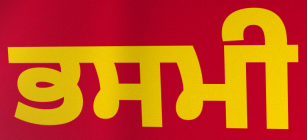
ਭਸਮੀ